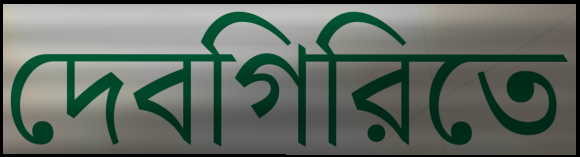
দেবগিরিতে